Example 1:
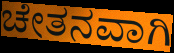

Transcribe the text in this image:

ಚೇತನವಾಗಿ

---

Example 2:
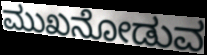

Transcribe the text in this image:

ಮುಖನೋಡುವ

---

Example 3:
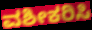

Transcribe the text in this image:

ವಶೀಕರಿಸಿ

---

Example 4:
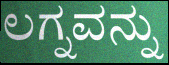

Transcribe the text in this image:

ಲಗ್ನವನ್ನು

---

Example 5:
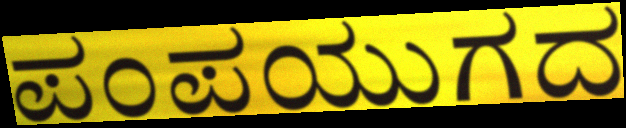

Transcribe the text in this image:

ಪಂಪಯುಗದ